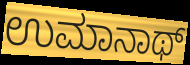
ಉಮಾನಾಥ್